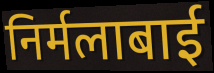
निर्मलाबाई